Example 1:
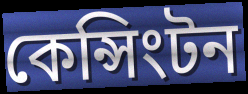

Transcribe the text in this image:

কেন্সিংটন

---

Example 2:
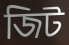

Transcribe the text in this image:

জিট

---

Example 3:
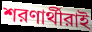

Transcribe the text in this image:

শরণার্থীরাই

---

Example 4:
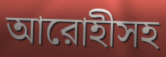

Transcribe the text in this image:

আরোহীসহ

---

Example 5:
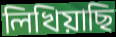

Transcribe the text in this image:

লিখিয়াছি